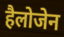
हैलोजेन